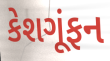
કેશગૂંફન